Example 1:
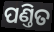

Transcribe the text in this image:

ପଣ୍ତିତ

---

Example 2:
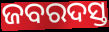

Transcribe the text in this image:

ଜବରଦସ୍ତ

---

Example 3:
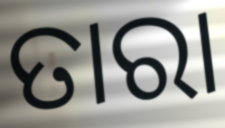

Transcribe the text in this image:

ତାରା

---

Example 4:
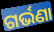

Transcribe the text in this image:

ଗର୍ଭଣା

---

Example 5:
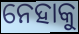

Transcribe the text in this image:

ନେହାକୁ